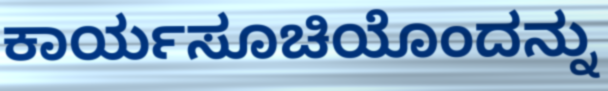
ಕಾರ್ಯಸೂಚಿಯೊಂದನ್ನು